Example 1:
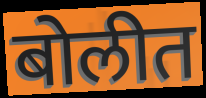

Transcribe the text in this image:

बोलीत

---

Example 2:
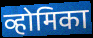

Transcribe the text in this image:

व्होमिका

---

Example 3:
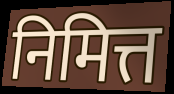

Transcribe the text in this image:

निमित्त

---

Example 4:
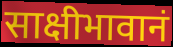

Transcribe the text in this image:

साक्षीभावानं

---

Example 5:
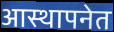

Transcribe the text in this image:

आस्थापनेत